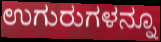
ಉಗುರುಗಳನ್ನೂ